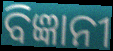
ବିଜ୍ଞାନୀ